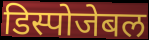
डिस्पोजेबल